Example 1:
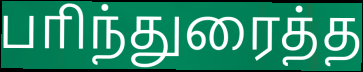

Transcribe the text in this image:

பரிந்துரைத்த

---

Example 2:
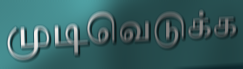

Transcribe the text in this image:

முடிவெடுக்க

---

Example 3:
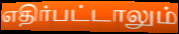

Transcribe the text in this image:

எதிர்பட்டாலும்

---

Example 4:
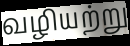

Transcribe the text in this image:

வழியற்று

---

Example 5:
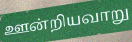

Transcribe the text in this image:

ஊன்றியவாறு